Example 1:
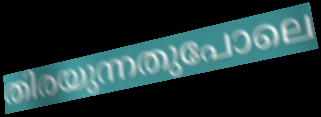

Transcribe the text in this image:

തിരയുന്നതുപോലെ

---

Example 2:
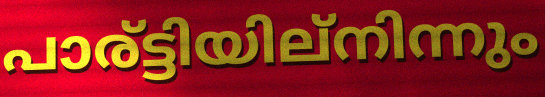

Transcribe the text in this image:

പാര്ട്ടിയില്നിന്നും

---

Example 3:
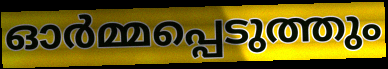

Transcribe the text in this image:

ഓർമ്മപ്പെടുത്തും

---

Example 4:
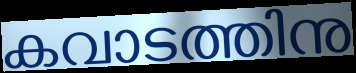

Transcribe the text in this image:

കവാടത്തിനു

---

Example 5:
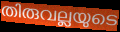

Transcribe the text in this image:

തിരുവല്ലയുടെ